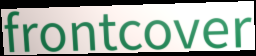
frontcover